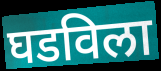
घडविला